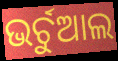
ଭର୍ଚୁଆଲ